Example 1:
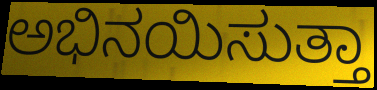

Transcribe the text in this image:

ಅಭಿನಯಿಸುತ್ತಾ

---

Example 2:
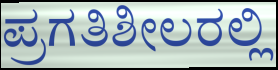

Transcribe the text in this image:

ಪ್ರಗತಿಶೀಲರಲ್ಲಿ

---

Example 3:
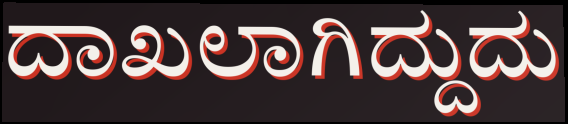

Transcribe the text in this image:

ದಾಖಲಾಗಿದ್ದುದು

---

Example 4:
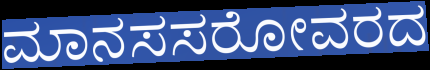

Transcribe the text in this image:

ಮಾನಸಸರೋವರದ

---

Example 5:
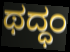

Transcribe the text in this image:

ಥದ್ಧಂ